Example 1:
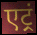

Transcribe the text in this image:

एट्रं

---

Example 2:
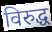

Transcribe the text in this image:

विरुद्ध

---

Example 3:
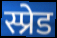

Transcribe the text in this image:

स्प्रेड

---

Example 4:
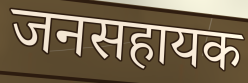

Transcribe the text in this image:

जनसहायक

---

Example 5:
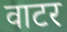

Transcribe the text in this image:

वाटर